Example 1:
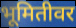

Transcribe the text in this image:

भूमितीवर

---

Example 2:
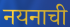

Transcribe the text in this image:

नयनाची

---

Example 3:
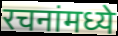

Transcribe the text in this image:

रचनांमध्ये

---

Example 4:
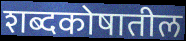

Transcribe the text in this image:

शब्दकोषातील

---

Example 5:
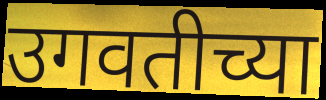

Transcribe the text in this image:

उगवतीच्या